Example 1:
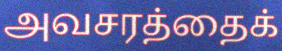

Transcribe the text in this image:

அவசரத்தைக்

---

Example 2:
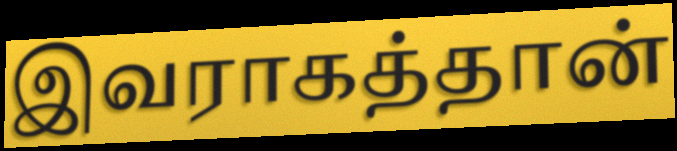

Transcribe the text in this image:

இவராகத்தான்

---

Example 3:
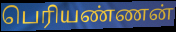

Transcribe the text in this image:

பெரியண்ணன்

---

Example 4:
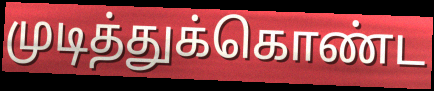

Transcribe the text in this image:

முடித்துக்கொண்ட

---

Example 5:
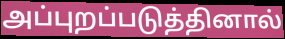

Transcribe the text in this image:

அப்புறப்படுத்தினால்